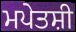
ਮਪੇਤਸ਼ੀ